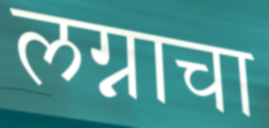
लग्नाचा